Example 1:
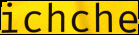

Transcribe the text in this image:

ichche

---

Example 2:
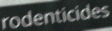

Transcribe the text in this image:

rodenticides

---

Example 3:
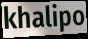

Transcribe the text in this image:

khalipo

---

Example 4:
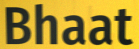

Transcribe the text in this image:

Bhaat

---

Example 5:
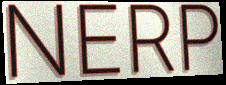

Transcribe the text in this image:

NERP